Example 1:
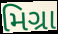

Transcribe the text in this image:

મિગ્રા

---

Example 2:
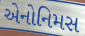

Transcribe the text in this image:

એનોનિમસ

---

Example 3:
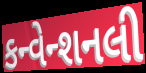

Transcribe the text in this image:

કન્વેન્શનલી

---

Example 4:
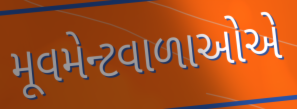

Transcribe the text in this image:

મૂવમેન્ટવાળાઓએ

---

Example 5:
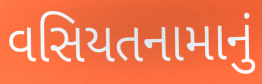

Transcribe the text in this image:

વસિયતનામાનું